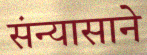
संन्यासाने